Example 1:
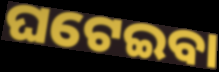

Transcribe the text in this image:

ଘଟେଇବା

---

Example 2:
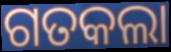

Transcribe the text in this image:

ଗତକଲା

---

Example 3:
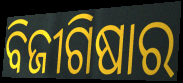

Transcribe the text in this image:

ବିଜୀଗିଷାର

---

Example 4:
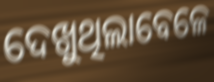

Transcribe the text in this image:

ଦେଖୁଥିଲାବେଳେ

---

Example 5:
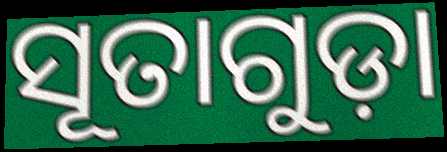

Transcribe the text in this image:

ସୂତାଗୁଡ଼ା